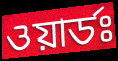
ওয়ার্ডঃ